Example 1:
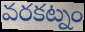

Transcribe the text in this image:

వరకట్నం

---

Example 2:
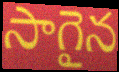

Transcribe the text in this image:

సాగైన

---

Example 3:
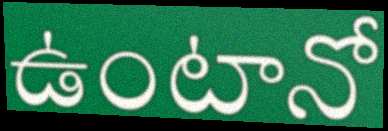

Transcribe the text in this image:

ఉంటానో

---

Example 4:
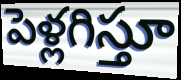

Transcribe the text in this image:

పెళ్లగిస్తూ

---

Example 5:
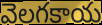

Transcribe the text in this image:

వెలగకాయ